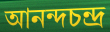
আনন্দচন্দ্র